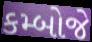
કમ્બોજે